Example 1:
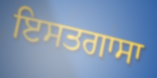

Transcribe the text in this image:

ਇਸਤਗਾਸਾ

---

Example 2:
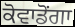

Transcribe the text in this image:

ਕੋਵਾਡੋਂਗਾ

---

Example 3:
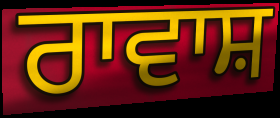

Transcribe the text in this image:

ਰਾਵਾਸ਼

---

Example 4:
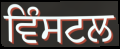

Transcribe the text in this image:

ਵਿੰਸਟਲ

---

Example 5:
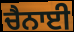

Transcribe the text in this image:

ਚੈਨਾਈ